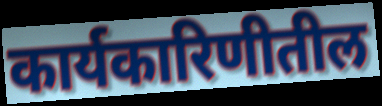
कार्यकारिणीतील